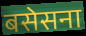
बसेसना